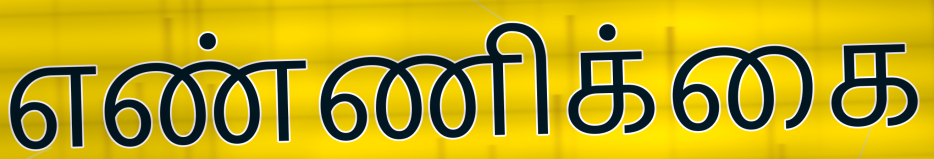
எண்ணிக்கை